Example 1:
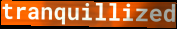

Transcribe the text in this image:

tranquillized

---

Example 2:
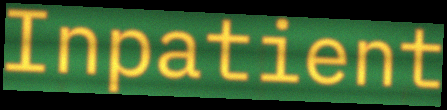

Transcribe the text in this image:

Inpatient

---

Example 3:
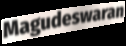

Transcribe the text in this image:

Magudeswaran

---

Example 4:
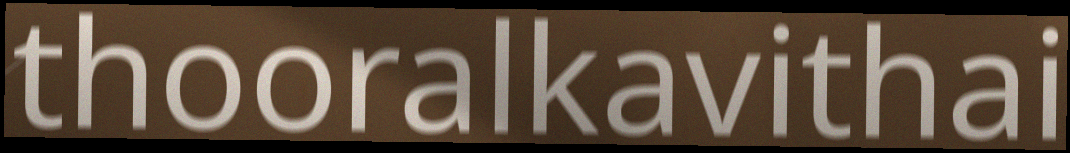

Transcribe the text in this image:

thooralkavithai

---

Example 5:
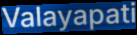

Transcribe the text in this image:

Valayapati